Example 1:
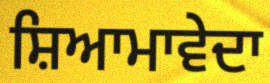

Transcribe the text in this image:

ਸ਼ਿਆਮਾਵੇਦਾ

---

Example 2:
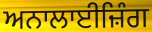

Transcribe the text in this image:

ਅਨਾਲਾਈਜ਼ਿੰਗ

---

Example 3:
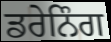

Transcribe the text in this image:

ਡਰੇਨਿੰਗ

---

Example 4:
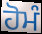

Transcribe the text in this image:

ਹੋਮੰ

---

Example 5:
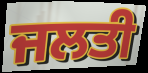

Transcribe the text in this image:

ਜਲਤੀ